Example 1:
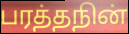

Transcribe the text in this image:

பரத்தநின்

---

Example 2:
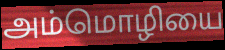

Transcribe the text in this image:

அம்மொழியை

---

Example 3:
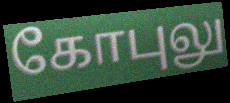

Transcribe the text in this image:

கோபுலு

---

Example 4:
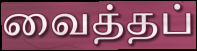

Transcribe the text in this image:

வைத்தப்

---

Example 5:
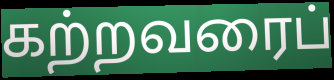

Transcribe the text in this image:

கற்றவரைப்